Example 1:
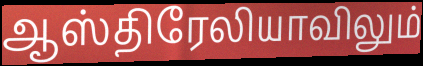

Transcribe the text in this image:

ஆஸ்திரேலியாவிலும்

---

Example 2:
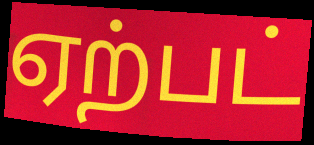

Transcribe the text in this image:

ஏற்பட்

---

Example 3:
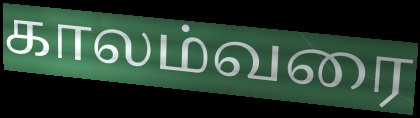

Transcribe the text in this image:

காலம்வரை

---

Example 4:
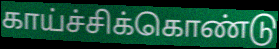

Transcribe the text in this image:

காய்ச்சிக்கொண்டு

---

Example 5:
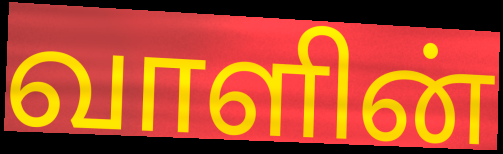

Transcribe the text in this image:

வாளின்